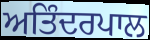
ਅਤਿੰਦਰਪਾਲ